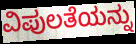
ವಿಪುಲತೆಯನ್ನು